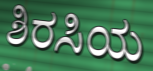
ಶಿರಸಿಯ